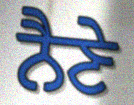
ਨੈਣੇ